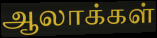
ஆலாக்கள்